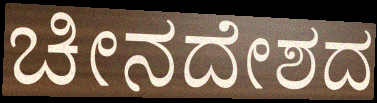
ಚೀನದೇಶದ